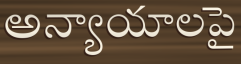
అన్యాయాలపై